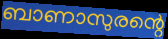
ബാണാസുരന്റെ